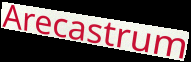
Arecastrum